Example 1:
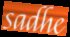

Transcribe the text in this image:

sadhe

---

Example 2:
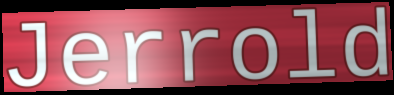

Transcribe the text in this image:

Jerrold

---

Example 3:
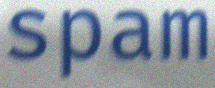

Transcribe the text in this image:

spam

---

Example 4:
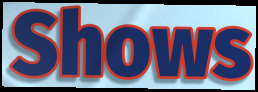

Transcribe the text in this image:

Shows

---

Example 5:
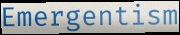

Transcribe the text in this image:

Emergentism